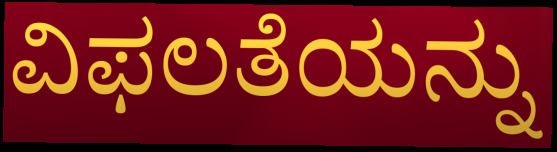
ವಿಫಲತೆಯನ್ನು